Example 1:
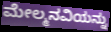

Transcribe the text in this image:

ಮೇಲ್ಮನವಿಯನ್ನು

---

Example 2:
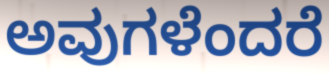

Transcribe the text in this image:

ಅವುಗಳೆಂದರೆ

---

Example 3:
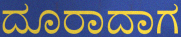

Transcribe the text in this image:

ದೂರಾದಾಗ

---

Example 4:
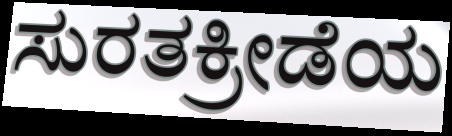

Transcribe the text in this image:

ಸುರತಕ್ರೀಡೆಯ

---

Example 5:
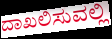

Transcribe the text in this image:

ದಾಖಲಿಸುವಲ್ಲಿ